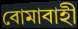
বোমাবাহী